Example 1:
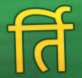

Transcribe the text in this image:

र्ति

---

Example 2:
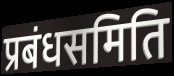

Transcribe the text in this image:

प्रबंधसमिति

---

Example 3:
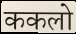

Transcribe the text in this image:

ककलो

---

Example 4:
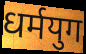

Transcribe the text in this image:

धर्मयुग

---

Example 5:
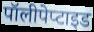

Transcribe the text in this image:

पॉलीपेप्टाइड